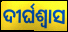
ଦୀର୍ଘଶ୍ୱାସ